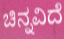
ಚಿನ್ನವಿದೆ